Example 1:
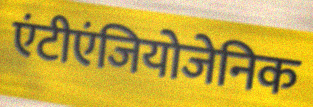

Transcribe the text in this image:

एंटीएंजियोजेनिक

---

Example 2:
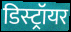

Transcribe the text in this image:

डिस्‍ट्रॉयर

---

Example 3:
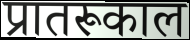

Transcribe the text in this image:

प्रातरूकाल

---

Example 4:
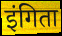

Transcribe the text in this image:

इंगिता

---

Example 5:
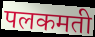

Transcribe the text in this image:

पलकमती